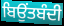
ਬਿਉਂਤਬੰਦੀ